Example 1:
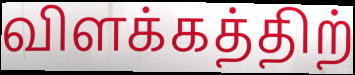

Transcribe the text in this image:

விளக்கத்திற்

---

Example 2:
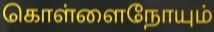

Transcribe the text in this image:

கொள்ளைநோயும்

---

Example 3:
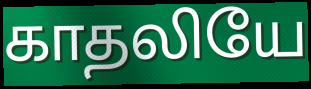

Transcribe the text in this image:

காதலியே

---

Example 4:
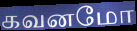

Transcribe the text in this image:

கவனமோ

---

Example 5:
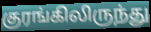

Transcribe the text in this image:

குரங்கிலிருந்து